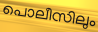
പൊലീസിലും